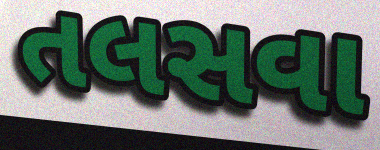
તલસવા